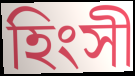
হিংসী